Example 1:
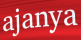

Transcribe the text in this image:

ajanya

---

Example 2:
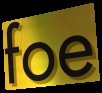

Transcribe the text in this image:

foe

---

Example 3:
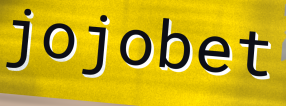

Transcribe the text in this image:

jojobet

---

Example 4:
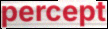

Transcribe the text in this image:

percept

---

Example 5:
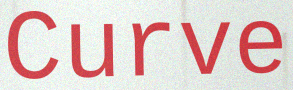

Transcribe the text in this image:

Curve